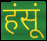
हंसूं